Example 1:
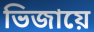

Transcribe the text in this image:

ভিজায়ে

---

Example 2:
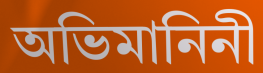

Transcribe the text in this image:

অভিমানিনী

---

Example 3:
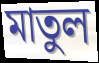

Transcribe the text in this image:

মাতুল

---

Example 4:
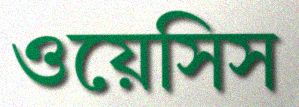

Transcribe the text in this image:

ওয়েসিস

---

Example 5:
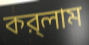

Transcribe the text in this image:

কর্‌লাম